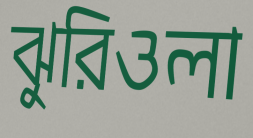
ঝুরিওলা